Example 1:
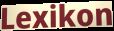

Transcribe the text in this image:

Lexikon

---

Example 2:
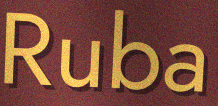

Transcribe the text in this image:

Ruba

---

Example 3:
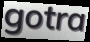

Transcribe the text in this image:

gotra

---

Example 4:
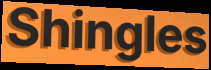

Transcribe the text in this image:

Shingles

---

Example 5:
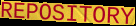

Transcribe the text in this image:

REPOSITORY